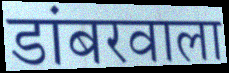
डांबरवाला